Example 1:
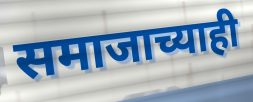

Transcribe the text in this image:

समाजाच्याही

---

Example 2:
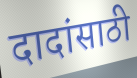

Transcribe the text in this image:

दादांसाठी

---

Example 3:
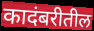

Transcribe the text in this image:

कादंबरीतील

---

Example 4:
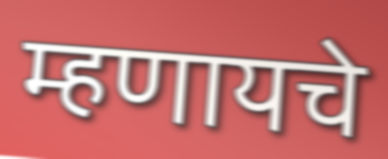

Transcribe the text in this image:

म्हणायचे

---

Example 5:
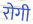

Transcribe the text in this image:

रोगी